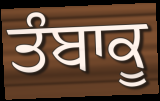
ਤੰਬਾਕੂ